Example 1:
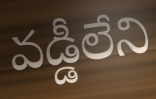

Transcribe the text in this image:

వడ్డీలేని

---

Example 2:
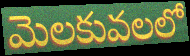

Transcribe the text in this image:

మెలకువలలో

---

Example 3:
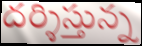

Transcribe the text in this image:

దర్శిస్తున్న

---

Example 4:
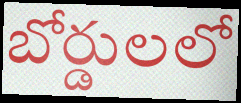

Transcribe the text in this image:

బోర్డులలో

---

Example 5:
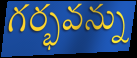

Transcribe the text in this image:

గర్భవన్ను